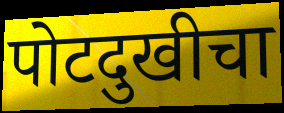
पोटदुखीचा